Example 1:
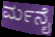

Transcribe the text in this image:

ರ್ಮನೈ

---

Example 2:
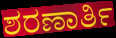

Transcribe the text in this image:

ಶರಣಾರ್ತಿ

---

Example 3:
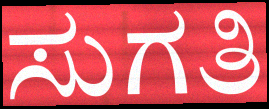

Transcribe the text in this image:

ಸುಗತಿ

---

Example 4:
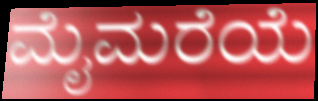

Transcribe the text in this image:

ಮೈಮರೆಯೆ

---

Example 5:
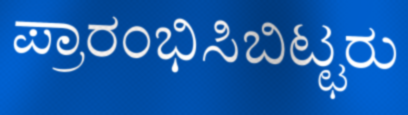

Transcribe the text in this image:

ಪ್ರಾರಂಭಿಸಿಬಿಟ್ಟರು